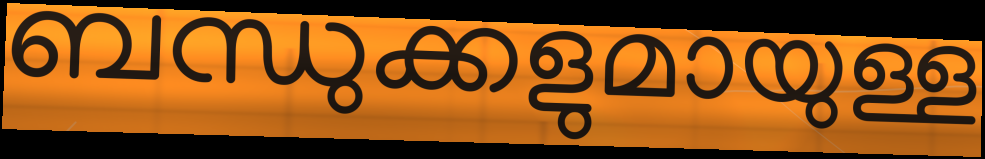
ബന്ധുക്കളുമായുള്ള